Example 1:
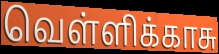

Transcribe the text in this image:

வெள்ளிக்காசு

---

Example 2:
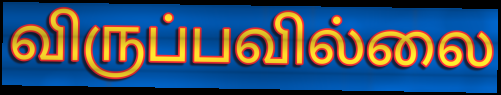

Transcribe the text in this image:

விருப்பவில்லை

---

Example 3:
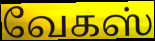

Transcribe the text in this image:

வேகஸ்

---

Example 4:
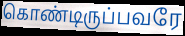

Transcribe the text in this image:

கொண்டிருப்பவரே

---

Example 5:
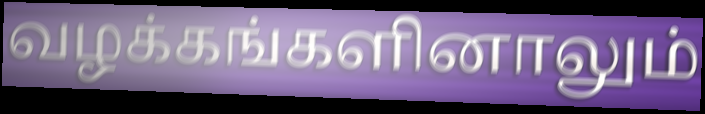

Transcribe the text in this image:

வழக்கங்களினாலும்